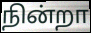
நின்றா